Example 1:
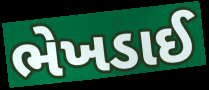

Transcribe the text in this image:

ભેખડાઈ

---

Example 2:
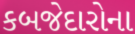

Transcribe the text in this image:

કબજેદારોના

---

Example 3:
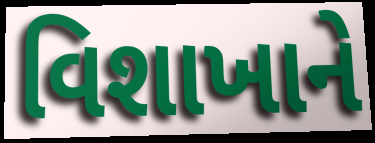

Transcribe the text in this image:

વિશાખાને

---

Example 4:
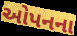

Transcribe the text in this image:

ઓપનના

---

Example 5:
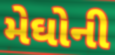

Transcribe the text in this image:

મેઘોની